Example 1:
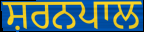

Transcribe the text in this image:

ਸ਼ਰਨਪਾਲ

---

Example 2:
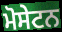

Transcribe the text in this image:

ਮੋਸੇਟਨ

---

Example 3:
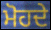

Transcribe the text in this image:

ਮੋਹਦੇ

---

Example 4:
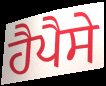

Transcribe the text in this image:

ਹੈਪੈਸੇ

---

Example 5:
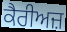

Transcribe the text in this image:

ਕੈਰੀਅਜ਼